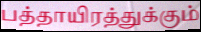
பத்தாயிரத்துக்கும்